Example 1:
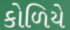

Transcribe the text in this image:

કોળિયે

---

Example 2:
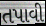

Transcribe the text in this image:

તપાવી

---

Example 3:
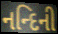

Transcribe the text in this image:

નન્દિની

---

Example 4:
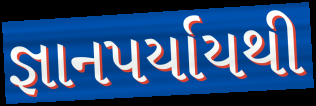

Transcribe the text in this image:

જ્ઞાનપર્યાયથી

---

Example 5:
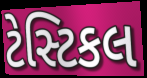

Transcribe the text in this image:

ટેસ્ટિકલ